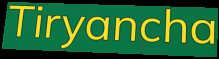
Tiryancha